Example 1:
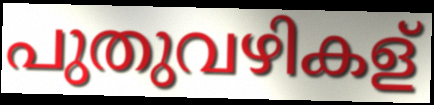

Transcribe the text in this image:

പുതുവഴികള്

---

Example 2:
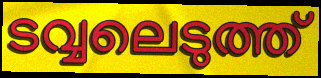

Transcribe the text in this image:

ടവ്വലെടുത്ത്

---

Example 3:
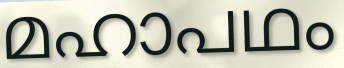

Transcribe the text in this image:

മഹാപഥം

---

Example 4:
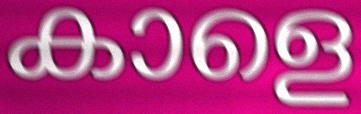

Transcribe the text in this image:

കാളെ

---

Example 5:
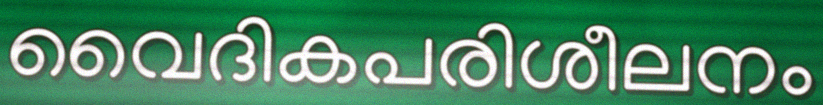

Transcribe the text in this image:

വൈദികപരിശീലനം